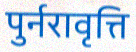
पुर्नरावृत्ति